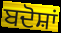
ਬਦੋਸ਼ਾਂ